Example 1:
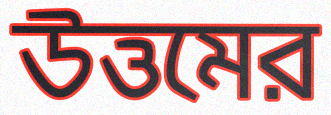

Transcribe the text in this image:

উত্তমের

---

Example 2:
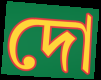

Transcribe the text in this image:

দো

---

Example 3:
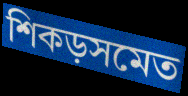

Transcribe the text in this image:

শিকড়সমেত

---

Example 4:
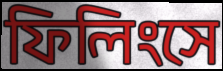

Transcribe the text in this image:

ফিলিংসে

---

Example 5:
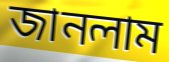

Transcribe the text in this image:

জানলাম